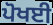
ਪੋਖਈ